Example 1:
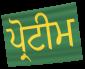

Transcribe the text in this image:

ਪ੍ਰੋਟੀਮ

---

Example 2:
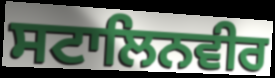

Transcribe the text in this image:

ਸਟਾਲਿਨਵੀਰ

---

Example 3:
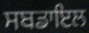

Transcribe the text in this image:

ਸਬਡਾਇਲ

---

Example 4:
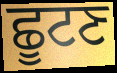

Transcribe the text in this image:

ਛੂਟਣ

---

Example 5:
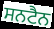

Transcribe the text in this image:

ਸਨਟੈਨ